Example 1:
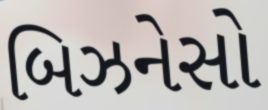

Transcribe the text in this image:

બિઝનેસો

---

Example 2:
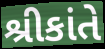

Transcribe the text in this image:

શ્રીકાંતે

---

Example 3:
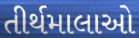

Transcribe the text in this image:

તીર્થમાલાઓ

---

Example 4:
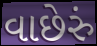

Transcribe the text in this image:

વાછેરું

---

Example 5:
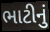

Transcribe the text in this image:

ભાટીનું